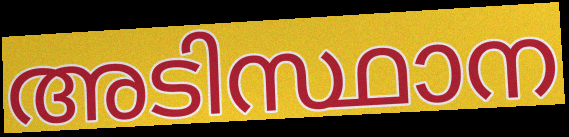
അടിസ്ഥാന